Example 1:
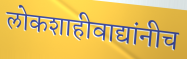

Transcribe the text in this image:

लोकशाहीवाद्यांनीच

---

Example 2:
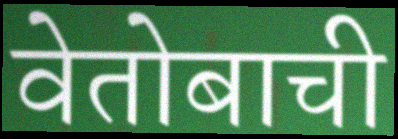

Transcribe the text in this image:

वेतोबाची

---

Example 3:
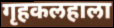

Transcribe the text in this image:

गृहकलहाला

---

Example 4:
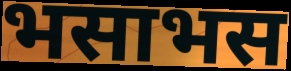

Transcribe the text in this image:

भसाभस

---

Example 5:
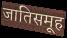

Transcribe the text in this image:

जातिसमूह